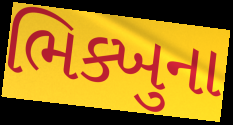
ભિક્ખુના